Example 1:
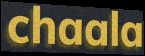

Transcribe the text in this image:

chaala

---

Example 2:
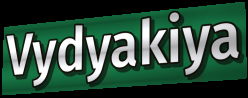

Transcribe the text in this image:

Vydyakiya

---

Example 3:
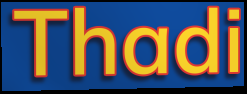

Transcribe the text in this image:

Thadi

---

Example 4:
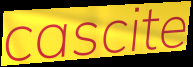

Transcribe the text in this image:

cascite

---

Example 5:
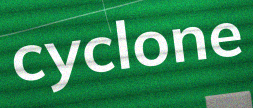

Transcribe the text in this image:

cyclone